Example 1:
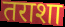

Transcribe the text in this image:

तराशा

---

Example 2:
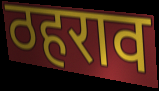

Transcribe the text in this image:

ठहराव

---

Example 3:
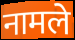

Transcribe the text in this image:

नामले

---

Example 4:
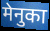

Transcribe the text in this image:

मेनुका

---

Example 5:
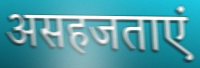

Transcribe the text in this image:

असहजताएं